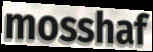
mosshaf